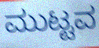
ಮುಟ್ಟವ